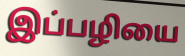
இப்பழியை